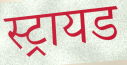
स्ट्रायड